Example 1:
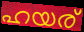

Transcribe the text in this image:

ഹയര്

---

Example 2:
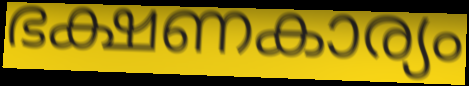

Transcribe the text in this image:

ഭക്ഷണകാര്യം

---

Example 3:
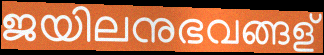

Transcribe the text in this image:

ജയിലനുഭവങ്ങള്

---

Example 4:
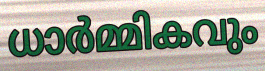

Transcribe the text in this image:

ധാർമ്മികവും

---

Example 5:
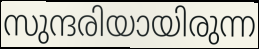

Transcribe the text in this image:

സുന്ദരിയായിരുന്ന